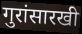
गुरांसारखी